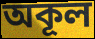
অকূল